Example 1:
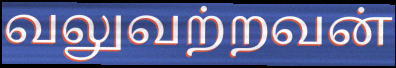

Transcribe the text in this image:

வலுவற்றவன்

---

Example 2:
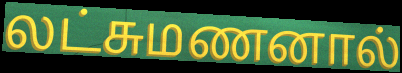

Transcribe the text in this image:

லட்சுமணனால்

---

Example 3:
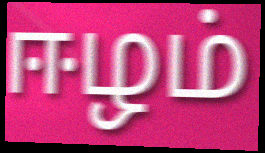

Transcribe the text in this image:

ஈழம்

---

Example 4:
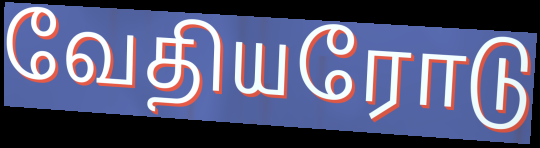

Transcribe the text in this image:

வேதியரோடு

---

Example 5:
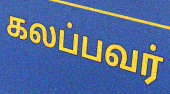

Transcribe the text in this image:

கலப்பவர்